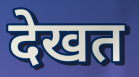
देखत